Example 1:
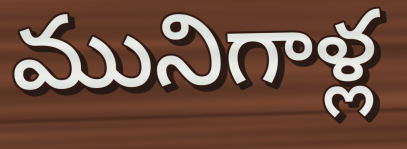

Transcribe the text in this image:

మునిగాళ్ల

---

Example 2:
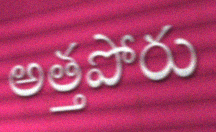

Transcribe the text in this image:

అత్తపోరు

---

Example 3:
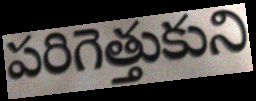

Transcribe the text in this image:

పరిగెత్తుకుని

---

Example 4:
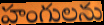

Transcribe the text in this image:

హంగులను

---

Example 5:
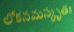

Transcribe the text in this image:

లోకనమస్కృతః